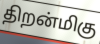
திறன்மிகு